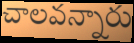
చాలవన్నారు